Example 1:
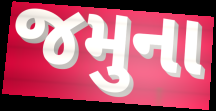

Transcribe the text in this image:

જમુના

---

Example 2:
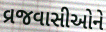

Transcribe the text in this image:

વ્રજવાસીઓને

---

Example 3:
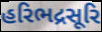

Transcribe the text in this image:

હરિભદ્રસૂરિ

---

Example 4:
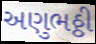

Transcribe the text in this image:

અણુભઠ્ઠી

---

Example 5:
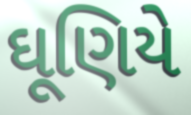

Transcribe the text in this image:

ઘૂણિયે